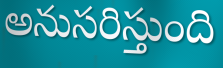
అనుసరిస్తుంది